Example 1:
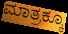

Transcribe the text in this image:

ಮಾತ್ರಕ್ಕೂ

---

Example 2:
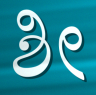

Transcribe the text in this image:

ಶೀ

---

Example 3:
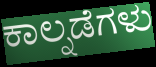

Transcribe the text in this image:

ಕಾಲ್ನಡೆಗಳು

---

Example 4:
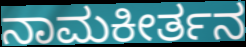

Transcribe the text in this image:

ನಾಮಕೀರ್ತನ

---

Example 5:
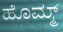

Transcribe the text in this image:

ಹೊಮ್ಮ್